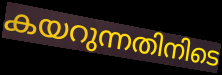
കയറുന്നതിനിടെ